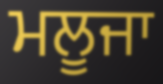
ਮਲੂਜਾ